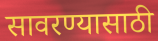
सावरण्यासाठी